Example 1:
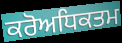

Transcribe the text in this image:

ਕਰੋਅਧਿਕਤਮ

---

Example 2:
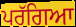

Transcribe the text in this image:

ਪਰੱਗਿਆ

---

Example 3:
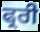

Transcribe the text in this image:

ਫ੍ਰਰੀ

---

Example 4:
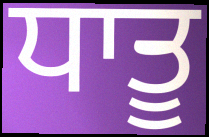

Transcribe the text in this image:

ਧਾਤੂ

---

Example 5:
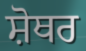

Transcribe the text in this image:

ਸ਼ੋਥਰ